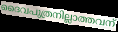
ദൈവപുത്രനില്ലാത്തവന്